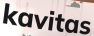
kavitas